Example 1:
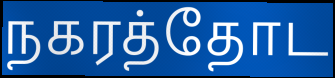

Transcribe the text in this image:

நகரத்தோட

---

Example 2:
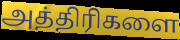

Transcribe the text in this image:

அத்திரிகளை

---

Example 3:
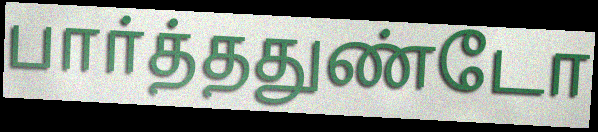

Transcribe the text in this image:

பார்த்ததுண்டோ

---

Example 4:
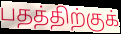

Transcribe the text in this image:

பதத்திற்குக்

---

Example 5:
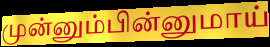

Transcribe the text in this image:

முன்னும்பின்னுமாய்